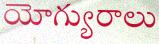
యోగ్యురాలు